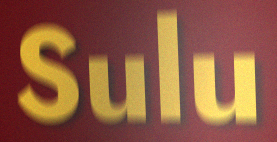
Sulu